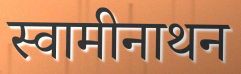
स्वामीनाथन